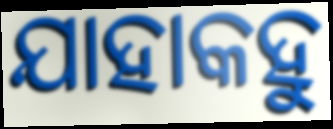
ଯାହାକହୁ